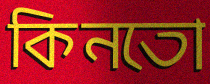
কিনতো